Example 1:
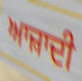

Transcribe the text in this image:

ਆਜ਼ਾਦੀ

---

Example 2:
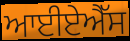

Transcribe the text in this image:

ਆਈਏਐੱਸ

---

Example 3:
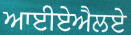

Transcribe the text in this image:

ਆਈਏਐਲਏ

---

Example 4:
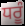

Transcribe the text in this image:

ਧਰੂੰ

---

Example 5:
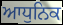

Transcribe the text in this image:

ਆਧੁਨਿਕ